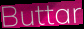
Buttar